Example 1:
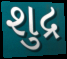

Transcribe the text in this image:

શુદ્ર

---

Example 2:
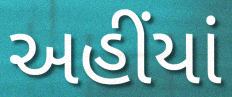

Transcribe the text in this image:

અહીંયાં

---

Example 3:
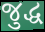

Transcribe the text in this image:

જુદ્ધ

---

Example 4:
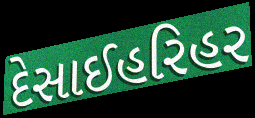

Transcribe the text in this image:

દેસાઈહરિહર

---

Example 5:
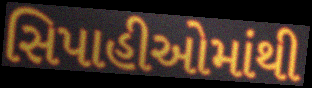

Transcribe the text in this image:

સિપાહીઓમાંથી